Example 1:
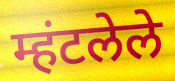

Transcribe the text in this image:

म्हंटलेले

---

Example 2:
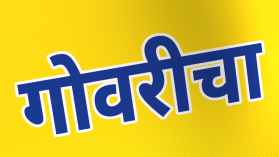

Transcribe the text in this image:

गोवरीचा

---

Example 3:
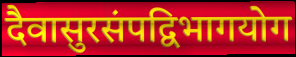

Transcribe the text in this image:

दैवासुरसंपद्विभागयोग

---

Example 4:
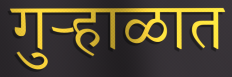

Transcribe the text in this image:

गुऱ्हाळात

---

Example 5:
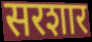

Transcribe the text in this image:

सरशार